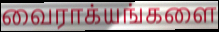
வைராக்யங்களை